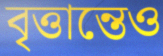
বৃত্তান্তেও